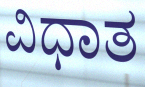
ವಿಧಾತ